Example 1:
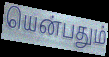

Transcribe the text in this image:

யென்பதும்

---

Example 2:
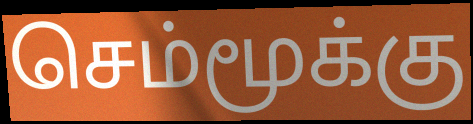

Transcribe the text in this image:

செம்மூக்கு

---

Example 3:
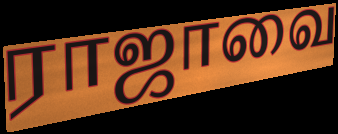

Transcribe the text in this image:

ராஜாவை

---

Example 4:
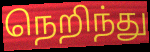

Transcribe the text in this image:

நெறிந்து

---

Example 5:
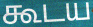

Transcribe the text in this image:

கூடய